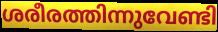
ശരീരത്തിന്നുവേണ്ടി